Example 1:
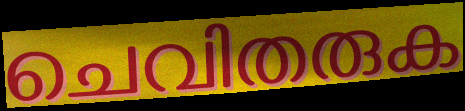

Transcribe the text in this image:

ചെവിതരുക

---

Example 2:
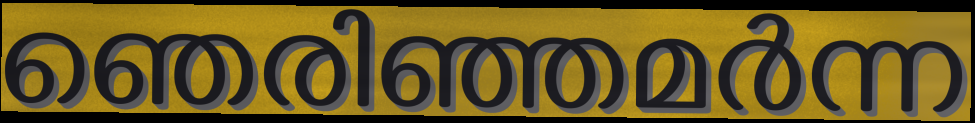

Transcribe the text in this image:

ഞെരിഞ്ഞമർന്ന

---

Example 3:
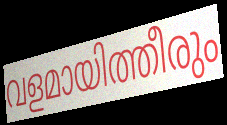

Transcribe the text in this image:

വളമായിത്തീരും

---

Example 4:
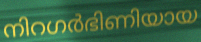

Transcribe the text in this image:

നിറഗർഭിണിയായ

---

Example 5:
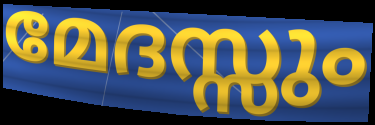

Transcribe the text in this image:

മേദസ്സും